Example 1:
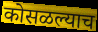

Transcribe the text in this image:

कोसळल्याच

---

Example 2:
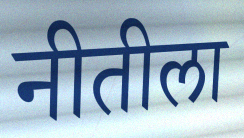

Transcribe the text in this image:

नीतीला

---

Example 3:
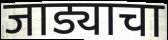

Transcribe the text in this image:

जाड्याचा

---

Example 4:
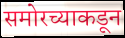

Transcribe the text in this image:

समोरच्याकडून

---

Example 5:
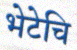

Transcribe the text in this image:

भेटेचि